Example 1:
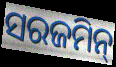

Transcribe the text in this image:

ସରଜମିନ୍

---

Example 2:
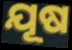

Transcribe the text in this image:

ଯୂଷ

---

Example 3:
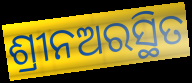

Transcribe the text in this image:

ଶ୍ରୀନଅରସ୍ଥିତ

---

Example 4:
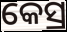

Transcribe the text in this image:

କେସ୍ର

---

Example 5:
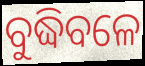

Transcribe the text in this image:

ବୁଦ୍ଧିବଳେ